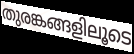
തുരങ്കങ്ങളിലൂടെ